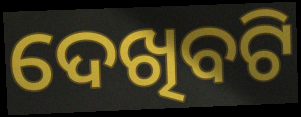
ଦେଖିବଟି